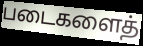
படைகளைத்